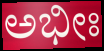
ಅಭೀಃ